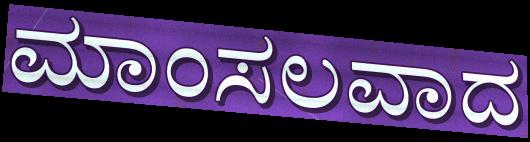
ಮಾಂಸಲವಾದ